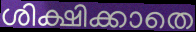
ശിക്ഷിക്കാതെ